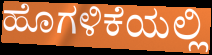
ಹೊಗಳಿಕೆಯಲ್ಲಿ